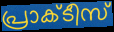
പ്രാക്ടീസ്